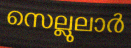
സെല്ലുലാർ